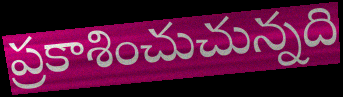
ప్రకాశించుచున్నది